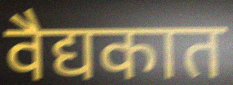
वैद्यकात